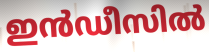
ഇൻഡീസിൽ